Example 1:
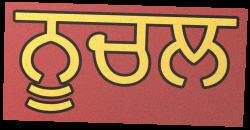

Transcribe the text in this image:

ਨੂਚਲ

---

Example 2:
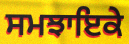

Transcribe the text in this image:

ਸਮਝਾਇਕੇ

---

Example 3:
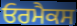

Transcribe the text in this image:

ਓਰਮੈਕਸ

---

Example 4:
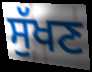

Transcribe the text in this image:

ਸੁੱਖਣ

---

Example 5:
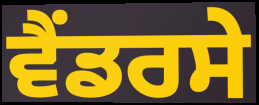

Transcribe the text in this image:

ਵੈਂਡਰਸੇ